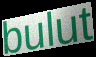
bulut